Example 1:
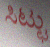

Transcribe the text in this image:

ಸಿಟ್ಟು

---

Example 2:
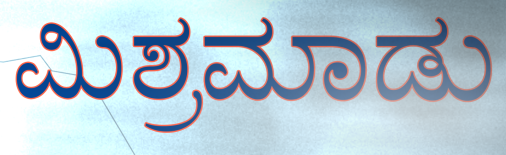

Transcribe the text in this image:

ಮಿಶ್ರಮಾಡು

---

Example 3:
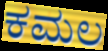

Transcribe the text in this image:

ಕಮಲ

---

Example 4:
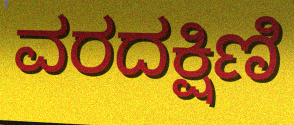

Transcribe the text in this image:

ವರದಕ್ಷಿಣಿ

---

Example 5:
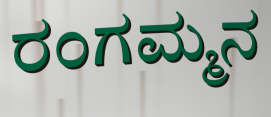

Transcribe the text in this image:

ರಂಗಮ್ಮನ